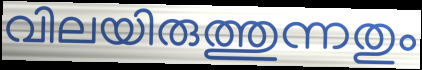
വിലയിരുത്തുന്നതും